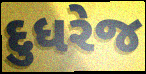
દુધરેજ